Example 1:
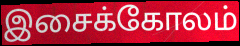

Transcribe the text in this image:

இசைக்கோலம்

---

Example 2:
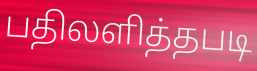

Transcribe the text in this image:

பதிலளித்தபடி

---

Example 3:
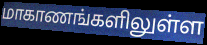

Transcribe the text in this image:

மாகாணங்களிலுள்ள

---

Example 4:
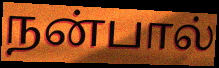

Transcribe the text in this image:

நன்பால்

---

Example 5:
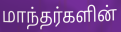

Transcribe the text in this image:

மாந்தர்களின்